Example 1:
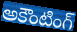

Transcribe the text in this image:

అకౌంటింగ్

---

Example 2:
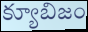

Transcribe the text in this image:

క్యూబిజం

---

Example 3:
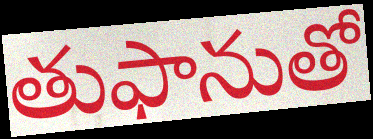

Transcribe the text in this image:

తుఫానుతో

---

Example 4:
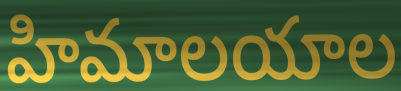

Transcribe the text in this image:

హిమాలయాల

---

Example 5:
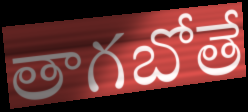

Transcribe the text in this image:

తాగబోతే